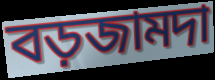
বড়জামদা